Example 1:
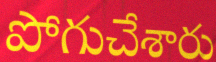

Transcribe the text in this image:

పోగుచేశారు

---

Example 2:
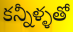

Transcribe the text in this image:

కన్నీళ్ళతో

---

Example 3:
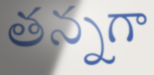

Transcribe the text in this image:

తన్నగా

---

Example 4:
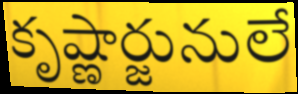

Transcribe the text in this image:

కృష్ణార్జునులే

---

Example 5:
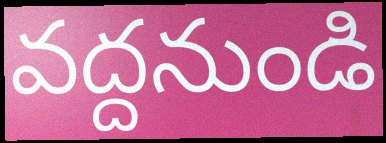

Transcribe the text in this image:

వద్దనుండి